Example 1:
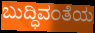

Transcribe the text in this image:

ಬುದ್ಧಿವಂತೆಯ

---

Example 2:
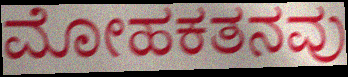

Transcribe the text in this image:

ಮೋಹಕತನವು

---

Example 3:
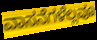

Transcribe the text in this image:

ವಾಸನೆಗಳೆಲ್ಲವೂ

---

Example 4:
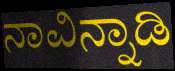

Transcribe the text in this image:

ನಾವಿನ್ನಾಡಿ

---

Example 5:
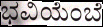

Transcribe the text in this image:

ಭವಿಯೆಂಬೆ